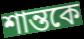
শান্তকে